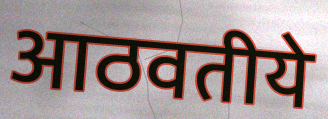
आठवतीये